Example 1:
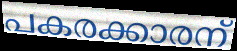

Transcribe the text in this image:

പകരക്കാരന്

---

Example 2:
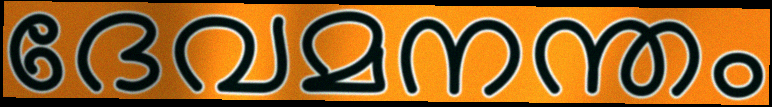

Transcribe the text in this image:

ദേവമനന്തം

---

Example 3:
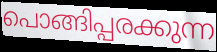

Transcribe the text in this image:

പൊങ്ങിപ്പരക്കുന്ന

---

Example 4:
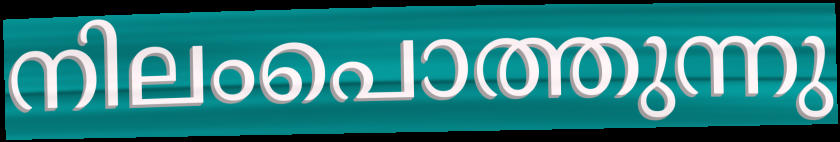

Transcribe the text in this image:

നിലംപൊത്തുന്നു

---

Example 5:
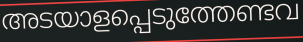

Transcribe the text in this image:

അടയാളപ്പെടുത്തേണ്ടവ